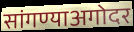
सांगण्याअगोदर